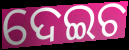
ଦେଇଚ